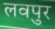
लवपुर